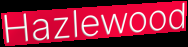
Hazlewood